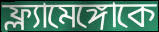
ফ্ল্যামেঙ্গোকে